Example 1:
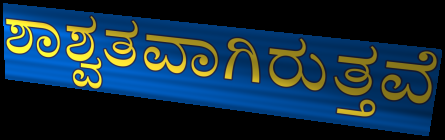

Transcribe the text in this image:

ಶಾಶ್ವತವಾಗಿರುತ್ತವೆ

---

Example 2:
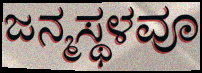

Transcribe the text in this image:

ಜನ್ಮಸ್ಥಳವೂ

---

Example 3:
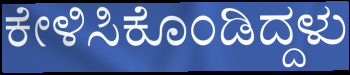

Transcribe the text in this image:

ಕೇಳಿಸಿಕೊಂಡಿದ್ದಳು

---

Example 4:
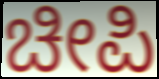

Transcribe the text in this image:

ಚೀಪಿ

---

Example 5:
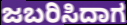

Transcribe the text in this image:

ಜಬರಿಸಿದಾಗ